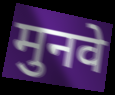
मुनवे